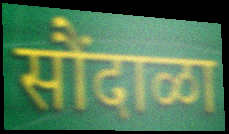
सौंदाळा